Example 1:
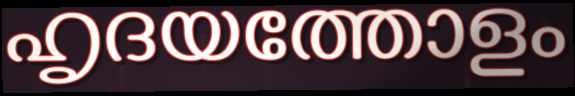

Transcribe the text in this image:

ഹൃദയത്തോളം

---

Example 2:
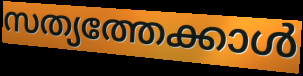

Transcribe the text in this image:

സത്യത്തേക്കാൾ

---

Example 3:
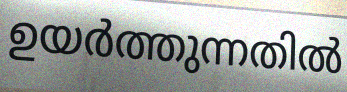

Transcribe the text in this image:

ഉയർത്തുന്നതിൽ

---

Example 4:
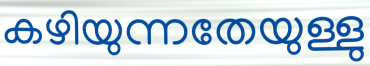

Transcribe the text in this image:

കഴിയുന്നതേയുള്ളു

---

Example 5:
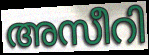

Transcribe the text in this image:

അസീറി